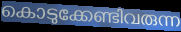
കൊടുക്കേണ്ടിവരുന്ന